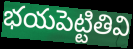
భయపెట్టితివి